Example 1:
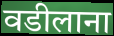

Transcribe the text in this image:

वडीलाना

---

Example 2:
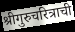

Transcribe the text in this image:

श्रीगुरुचरित्राची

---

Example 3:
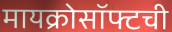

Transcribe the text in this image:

मायक्रोसॉफ्टची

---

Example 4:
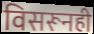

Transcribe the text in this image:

विसरूनही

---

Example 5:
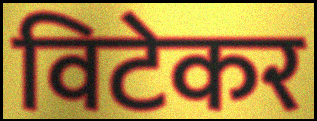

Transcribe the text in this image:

विटेकर